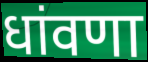
धांवणा